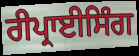
ਰੀਪ੍ਰਾਈਸਿੰਗ